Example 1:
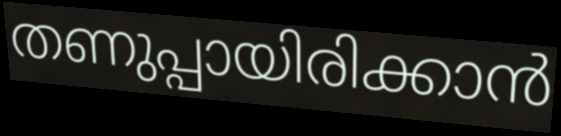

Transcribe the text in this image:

തണുപ്പായിരിക്കാൻ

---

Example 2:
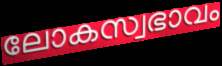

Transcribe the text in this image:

ലോകസ്വഭാവം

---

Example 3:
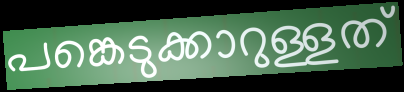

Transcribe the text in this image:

പങ്കെടുക്കാറുള്ളത്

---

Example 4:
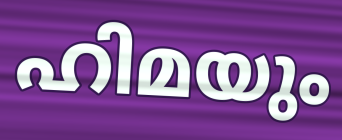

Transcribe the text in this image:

ഹിമയും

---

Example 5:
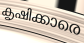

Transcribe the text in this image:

കൃഷിക്കാരെ